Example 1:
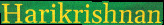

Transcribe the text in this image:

Harikrishnan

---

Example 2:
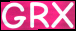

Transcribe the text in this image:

GRX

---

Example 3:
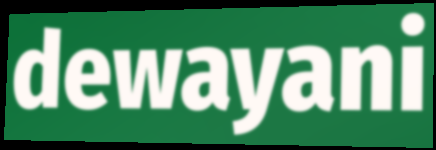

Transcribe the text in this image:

dewayani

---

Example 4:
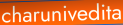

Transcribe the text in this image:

charunivedita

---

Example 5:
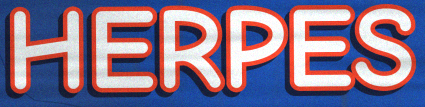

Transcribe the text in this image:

HERPES